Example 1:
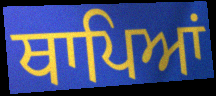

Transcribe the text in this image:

ਥਾਪਿਆਂ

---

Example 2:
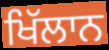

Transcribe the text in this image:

ਖਿੱਲਾਨ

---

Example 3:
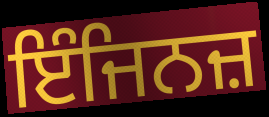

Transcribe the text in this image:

ਇੰਜਿਨਜ਼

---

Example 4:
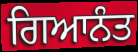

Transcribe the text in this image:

ਗਿਆਨੰਤ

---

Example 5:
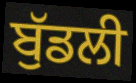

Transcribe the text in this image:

ਬੁੱਡਲੀ